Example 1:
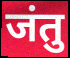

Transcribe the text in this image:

जंतु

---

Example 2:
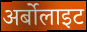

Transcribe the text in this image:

अर्बोलाइट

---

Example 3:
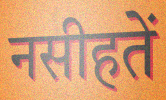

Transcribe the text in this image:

नसीहतें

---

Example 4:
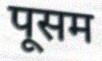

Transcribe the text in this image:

पूसम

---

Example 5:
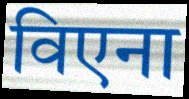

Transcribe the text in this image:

विएना